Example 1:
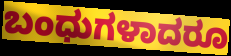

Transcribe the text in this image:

ಬಂಧುಗಳಾದರೂ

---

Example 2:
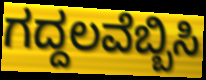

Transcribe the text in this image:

ಗದ್ದಲವೆಬ್ಬಿಸಿ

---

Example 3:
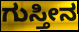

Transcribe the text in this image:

ಗುಸ್ತೀನ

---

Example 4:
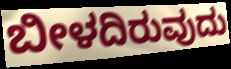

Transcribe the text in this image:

ಬೀಳದಿರುವುದು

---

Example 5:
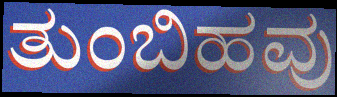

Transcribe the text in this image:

ತುಂಬಿಹವು